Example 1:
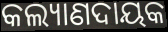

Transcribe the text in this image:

କଲ୍ୟାଣଦାୟକ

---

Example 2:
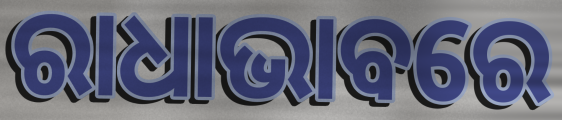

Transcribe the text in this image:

ରାଧାଭାବରେ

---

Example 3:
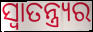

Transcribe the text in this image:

ସ୍ୱାତନ୍ତ୍ର୍ୟର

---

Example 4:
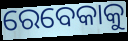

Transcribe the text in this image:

ରେବେକାକୁ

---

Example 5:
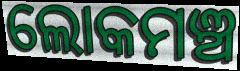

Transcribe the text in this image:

ଲୋକମଞ୍ଚ